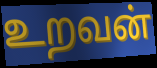
உறவன்